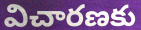
విచారణకు